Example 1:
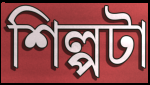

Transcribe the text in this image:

শিল্পটা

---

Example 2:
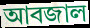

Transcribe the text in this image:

আবজাল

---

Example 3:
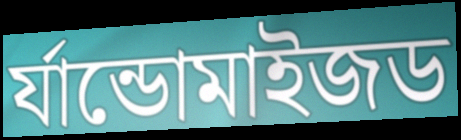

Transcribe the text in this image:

র্যান্ডোমাইজড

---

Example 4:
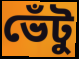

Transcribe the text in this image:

ভেঁটু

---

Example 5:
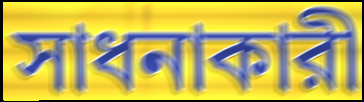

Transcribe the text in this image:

সাধনাকারী